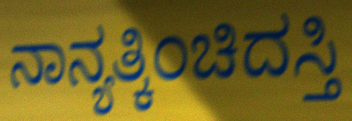
ನಾನ್ಯತ್ಕಿಂಚಿದಸ್ತಿ